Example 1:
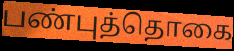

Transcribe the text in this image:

பண்புத்தொகை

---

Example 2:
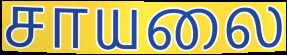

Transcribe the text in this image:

சாயலை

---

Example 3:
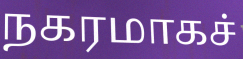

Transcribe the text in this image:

நகரமாகச்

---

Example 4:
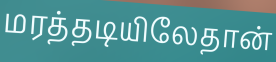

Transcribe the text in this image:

மரத்தடியிலேதான்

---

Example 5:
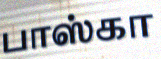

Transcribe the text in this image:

பாஸ்கா